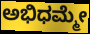
ಅಭಿಧಮ್ಮೇ